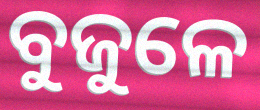
ବୁଜୁଳେ